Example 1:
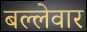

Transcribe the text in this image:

बल्लेवार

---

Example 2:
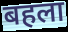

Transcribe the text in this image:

बहला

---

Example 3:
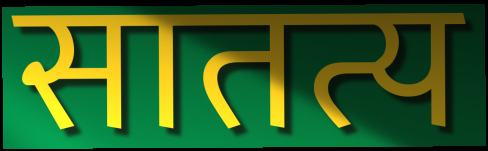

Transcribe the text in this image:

सातत्य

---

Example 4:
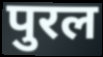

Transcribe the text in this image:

पुरल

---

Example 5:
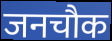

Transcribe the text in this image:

जनचौक